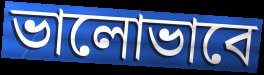
ভালোভাবে